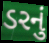
ડરનું